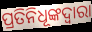
ପ୍ରତିନିଧୂଙ୍କଦ୍ଵାରା